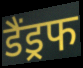
डैंड्रफ